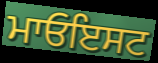
ਮਾਓਇਸਟ